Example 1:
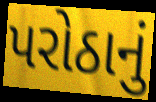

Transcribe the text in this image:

પરોઠાનું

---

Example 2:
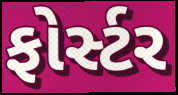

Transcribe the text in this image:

ફોર્સ્ટર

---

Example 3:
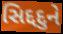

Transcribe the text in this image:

સિદ્દદુને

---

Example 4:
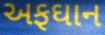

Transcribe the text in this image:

અફઘાન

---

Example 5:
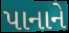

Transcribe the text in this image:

પાનાને